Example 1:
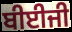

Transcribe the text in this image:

ਬੀਈਜੀ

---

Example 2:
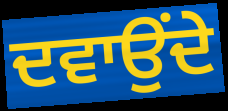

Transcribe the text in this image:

ਦਵਾਉਂਦੇ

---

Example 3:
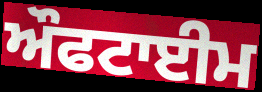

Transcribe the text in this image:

ਔਫਟਾਈਮ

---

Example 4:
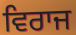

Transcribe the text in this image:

ਵਿਰਾਜ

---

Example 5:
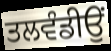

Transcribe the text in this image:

ਤਲਵੰਡੀਉਂ